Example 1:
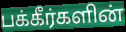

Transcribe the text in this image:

பக்கீர்களின்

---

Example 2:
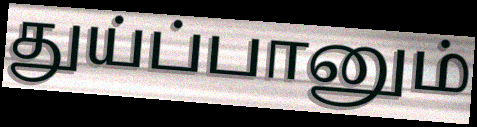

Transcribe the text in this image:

துய்ப்பானும்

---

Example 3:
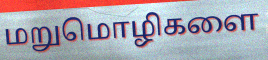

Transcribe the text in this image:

மறுமொழிகளை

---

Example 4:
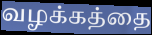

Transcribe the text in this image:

வழக்கத்தை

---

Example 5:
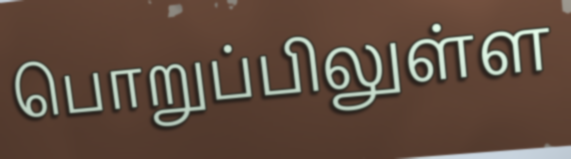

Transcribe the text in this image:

பொறுப்பிலுள்ள